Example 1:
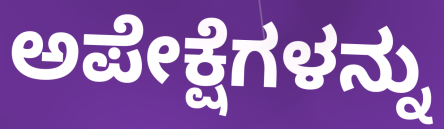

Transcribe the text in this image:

ಅಪೇಕ್ಷೆಗಳನ್ನು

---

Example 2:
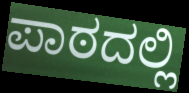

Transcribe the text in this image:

ಪಾಠದಲ್ಲಿ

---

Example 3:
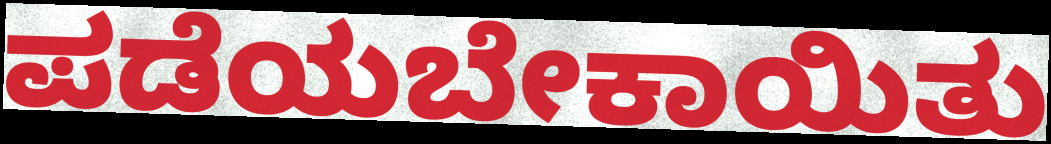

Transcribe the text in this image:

ಪಡೆಯಬೇಕಾಯಿತು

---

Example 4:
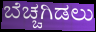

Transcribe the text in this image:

ಬೆಚ್ಚಗಿಡಲು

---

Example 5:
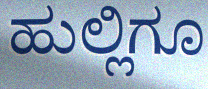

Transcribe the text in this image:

ಹುಲ್ಲಿಗೂ